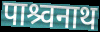
पाश्र्वनाथ